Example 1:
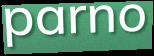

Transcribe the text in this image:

parno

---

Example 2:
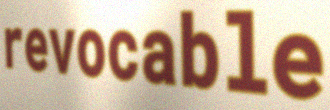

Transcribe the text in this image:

revocable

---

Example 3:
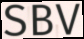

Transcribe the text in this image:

SBV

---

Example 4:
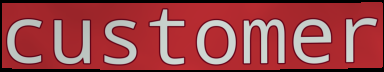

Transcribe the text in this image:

customer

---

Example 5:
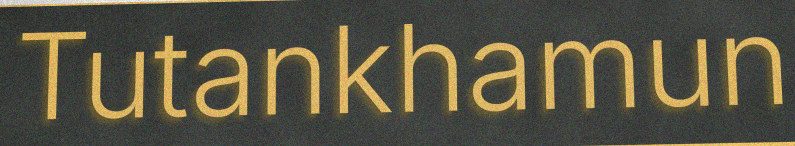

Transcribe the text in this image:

Tutankhamun